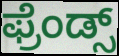
ಫ್ರೆಂಡ್ಸ್